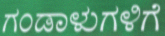
ಗಂಡಾಳುಗಳಿಗೆ